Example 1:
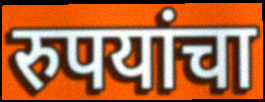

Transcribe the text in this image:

रुपयांचा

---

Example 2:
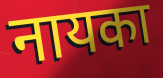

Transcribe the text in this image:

नायका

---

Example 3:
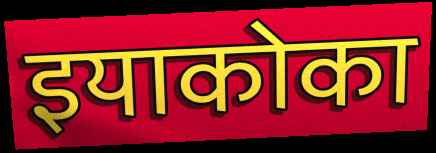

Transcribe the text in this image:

इयाकोका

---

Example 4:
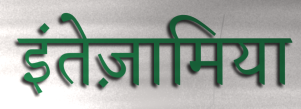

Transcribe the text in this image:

इंतेज़ामिया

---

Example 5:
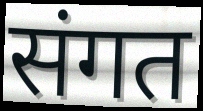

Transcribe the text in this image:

संगत